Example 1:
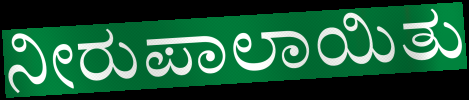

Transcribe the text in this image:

ನೀರುಪಾಲಾಯಿತು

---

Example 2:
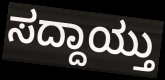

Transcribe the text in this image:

ಸದ್ದಾಯ್ತು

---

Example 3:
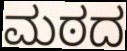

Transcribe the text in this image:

ಮಠದ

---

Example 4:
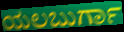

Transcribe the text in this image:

ಯಲಬುರ್ಗಾ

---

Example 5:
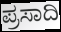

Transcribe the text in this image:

ಪ್ರಸಾದಿ